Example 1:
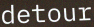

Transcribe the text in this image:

detour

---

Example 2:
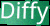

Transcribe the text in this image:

Diffy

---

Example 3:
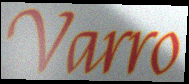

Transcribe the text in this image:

Varro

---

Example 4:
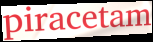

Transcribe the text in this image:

piracetam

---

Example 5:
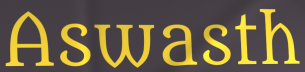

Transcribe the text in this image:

Aswasth